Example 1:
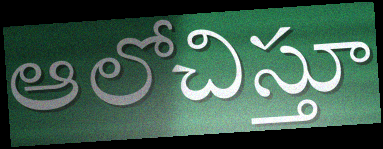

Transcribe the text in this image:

ఆలోచిస్తూ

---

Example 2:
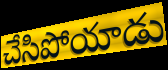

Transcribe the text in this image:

చేసిపోయాడు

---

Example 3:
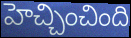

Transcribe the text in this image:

హెచ్చించింది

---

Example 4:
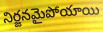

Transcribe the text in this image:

నిర్జనమైపోయాయి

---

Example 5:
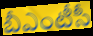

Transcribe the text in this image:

బీఎంటీసీ